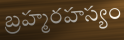
బ్రహ్మరహస్యం